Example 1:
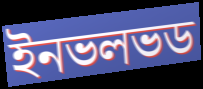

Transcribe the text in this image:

ইনভলভড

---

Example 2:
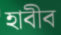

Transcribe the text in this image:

হাবীব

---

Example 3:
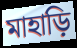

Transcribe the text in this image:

মাহাড়ি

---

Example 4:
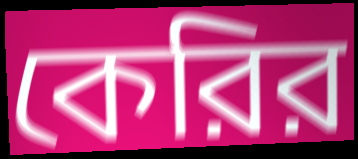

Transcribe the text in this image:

কেরির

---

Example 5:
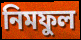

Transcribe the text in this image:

নিমফুল